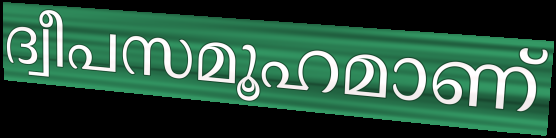
ദ്വീപസമൂഹമാണ്